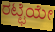
ರಟ್ಟೆಯೇ